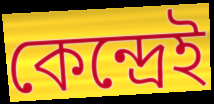
কেন্দ্রেই